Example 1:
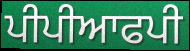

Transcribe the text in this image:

ਪੀਪੀਆਫਪੀ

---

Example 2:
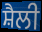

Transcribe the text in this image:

ਸ਼ੈਲੀ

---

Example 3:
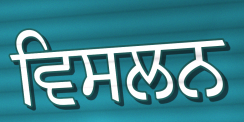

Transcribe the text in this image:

ਵਿਸਲਨ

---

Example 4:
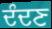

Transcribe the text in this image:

ਦੰਦਣ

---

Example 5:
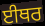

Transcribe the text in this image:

ਈਥਰ